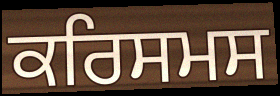
ਕਰਿਸਮਸ